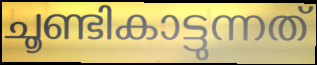
ചൂണ്ടികാട്ടുന്നത്